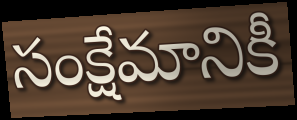
సంక్షేమానికీ